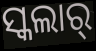
ସ୍କଲାର୍